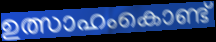
ഉത്സാഹംകൊണ്ട്